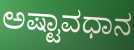
ಅಷ್ಟಾವಧಾನ